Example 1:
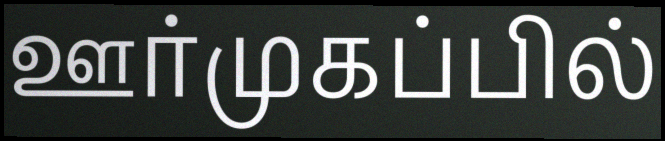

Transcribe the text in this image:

ஊர்முகப்பில்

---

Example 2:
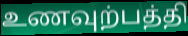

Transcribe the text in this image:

உணவுற்பத்தி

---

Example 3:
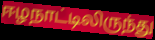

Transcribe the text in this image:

ஈழநாட்டிலிருந்து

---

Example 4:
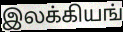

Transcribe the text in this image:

இலக்கியங்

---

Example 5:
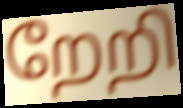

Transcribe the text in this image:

றேறி